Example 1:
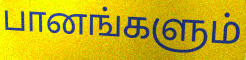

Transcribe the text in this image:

பானங்களும்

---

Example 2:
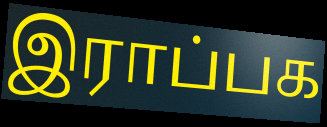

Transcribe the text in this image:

இராப்பக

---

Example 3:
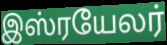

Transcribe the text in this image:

இஸ்ரயேலர்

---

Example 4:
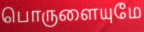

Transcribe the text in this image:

பொருளையுமே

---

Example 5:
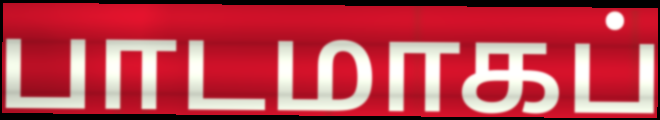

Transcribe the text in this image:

பாடமாகப்